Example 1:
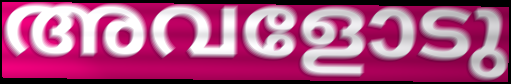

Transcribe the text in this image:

അവളോടു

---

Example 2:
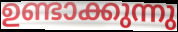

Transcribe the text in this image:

ഉണ്ടാക്കുന്നു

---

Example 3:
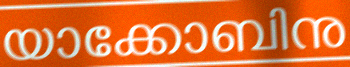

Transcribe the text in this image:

യാക്കോബിനു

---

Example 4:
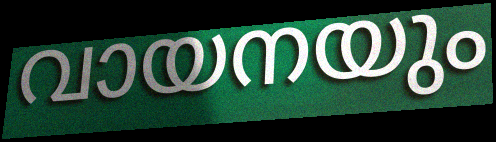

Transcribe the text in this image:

വായനയും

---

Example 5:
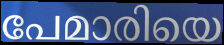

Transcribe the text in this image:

പേമാരിയെ